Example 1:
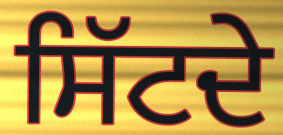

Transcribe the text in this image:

ਸਿੱਟਦੇ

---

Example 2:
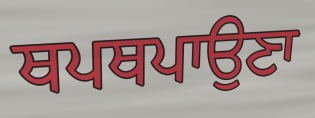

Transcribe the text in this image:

ਥਪਥਪਾਉਣਾ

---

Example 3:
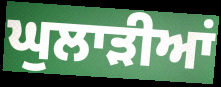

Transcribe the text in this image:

ਘੁਲਾੜੀਆਂ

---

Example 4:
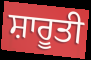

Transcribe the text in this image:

ਸ਼ਾਰੂਤੀ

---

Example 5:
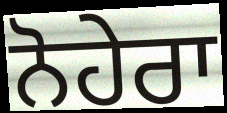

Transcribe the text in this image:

ਨੋਹੇਰਾ